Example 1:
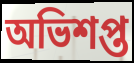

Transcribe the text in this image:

অভিশপ্ত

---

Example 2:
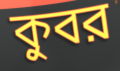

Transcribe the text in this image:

কুবর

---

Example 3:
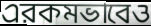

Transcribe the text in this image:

এরকমভাবেও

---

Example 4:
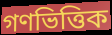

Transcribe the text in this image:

গণভিত্তিক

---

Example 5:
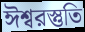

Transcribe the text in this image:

ঈশ্বরস্তুতি